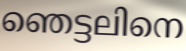
ഞെട്ടലിനെ